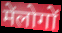
मेंलोगों